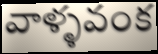
వాళ్ళవంక